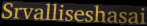
Srvalliseshasai